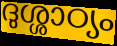
ദുശ്ശാഠ്യം